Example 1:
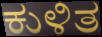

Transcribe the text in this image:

ಕುಳಿತ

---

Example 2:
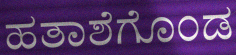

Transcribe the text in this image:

ಹತಾಶೆಗೊಂಡ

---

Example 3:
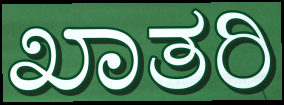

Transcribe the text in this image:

ಖಾತರಿ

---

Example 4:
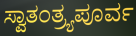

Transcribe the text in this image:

ಸ್ವಾತಂತ್ರ್ಯಪೂರ್ವ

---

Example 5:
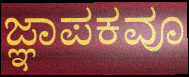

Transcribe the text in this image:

ಜ್ಞಾಪಕವೂ